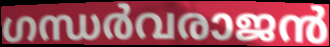
ഗന്ധർവരാജൻ